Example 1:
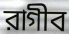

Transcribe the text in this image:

রাগীব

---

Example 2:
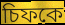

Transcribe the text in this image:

চিফকে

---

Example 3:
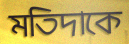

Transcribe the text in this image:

মতিদাকে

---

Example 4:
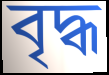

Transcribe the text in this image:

বৃদ্ধ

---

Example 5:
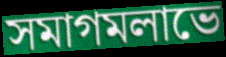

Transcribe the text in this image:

সমাগমলাভে